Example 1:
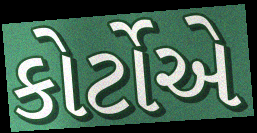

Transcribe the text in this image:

કોર્ટોએ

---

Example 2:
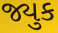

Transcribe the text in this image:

જ્યુક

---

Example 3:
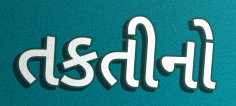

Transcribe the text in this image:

તકતીનો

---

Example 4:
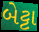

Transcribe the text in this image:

બેટ્ટા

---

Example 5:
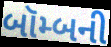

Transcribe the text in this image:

બૉમ્બની